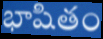
భాషితం